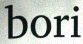
bori